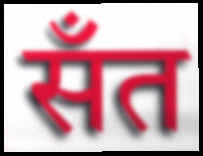
सँत